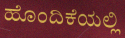
ಹೊಂದಿಕೆಯಲ್ಲಿ